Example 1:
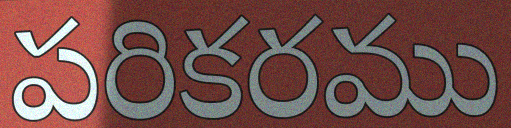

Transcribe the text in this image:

పరికరము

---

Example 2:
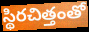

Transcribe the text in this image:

స్థిరచిత్తంతో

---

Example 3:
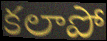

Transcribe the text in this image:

కలాపో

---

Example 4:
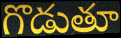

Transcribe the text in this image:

గొడుతూ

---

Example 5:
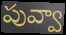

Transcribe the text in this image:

పువ్వా